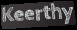
Keerthy